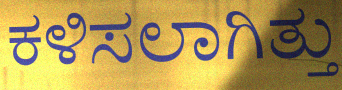
ಕಳಿಸಲಾಗಿತ್ತು